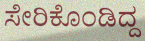
ಸೇರಿಕೊಂಡಿದ್ದ